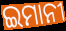
ଇମାନୀ